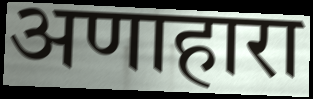
अणाहारा